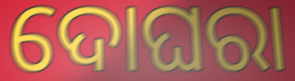
ଦୋଘରା